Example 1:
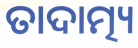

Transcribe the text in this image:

ତାଦାତ୍ମ୍ୟ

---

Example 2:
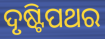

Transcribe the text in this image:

ଦୃଷ୍ଟିପଥର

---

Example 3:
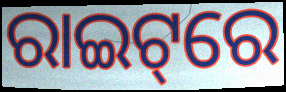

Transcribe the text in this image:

ରାଇଟ୍‌ରେ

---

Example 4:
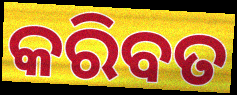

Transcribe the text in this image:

କରିବତ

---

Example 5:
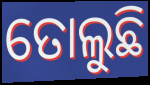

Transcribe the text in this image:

ତୋଲୁଛି